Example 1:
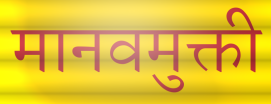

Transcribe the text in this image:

मानवमुक्ती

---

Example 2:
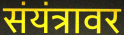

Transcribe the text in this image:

संयंत्रावर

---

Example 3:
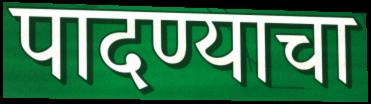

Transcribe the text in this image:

पादण्याचा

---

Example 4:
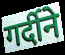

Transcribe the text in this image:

गर्दीने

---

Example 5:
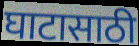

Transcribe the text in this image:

घाटासाठी